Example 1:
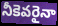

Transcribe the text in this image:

నీకెవరైనా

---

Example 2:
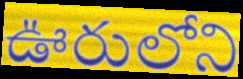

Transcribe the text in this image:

ఊరులోని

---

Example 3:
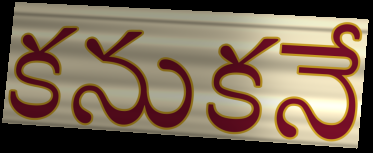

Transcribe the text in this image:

కనుకనే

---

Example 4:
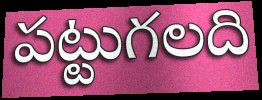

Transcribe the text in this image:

పట్టుగలది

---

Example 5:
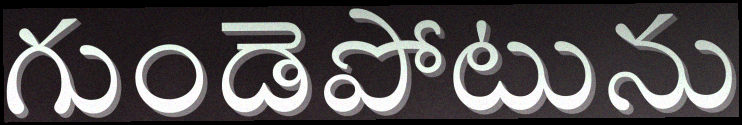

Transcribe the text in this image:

గుండెపోటును